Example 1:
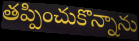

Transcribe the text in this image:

తప్పించుకొన్నాను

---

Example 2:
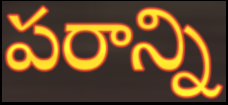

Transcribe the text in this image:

పరాన్ని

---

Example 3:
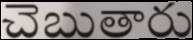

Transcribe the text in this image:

చెబుతారు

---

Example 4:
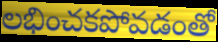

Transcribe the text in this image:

లభించకపోవడంతో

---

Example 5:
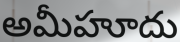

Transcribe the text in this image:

అమీహూదు